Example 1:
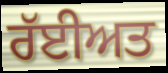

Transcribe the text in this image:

ਰੱਈਅਤ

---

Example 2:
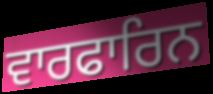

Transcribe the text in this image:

ਵਾਰਫਾਰਿਨ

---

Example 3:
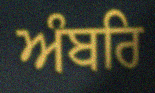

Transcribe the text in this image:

ਅੰਬਰਿ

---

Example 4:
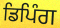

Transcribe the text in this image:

ਡਿਪਿੰਗ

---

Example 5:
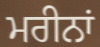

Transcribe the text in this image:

ਮਰੀਨਾਂ